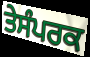
ਤੇਸੰਪਰਕ